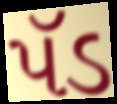
પૅડ